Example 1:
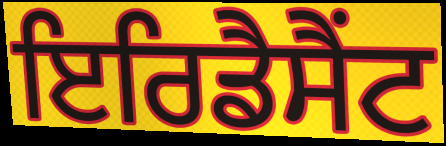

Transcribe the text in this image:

ਇਰਿਡੈਸੈਂਟ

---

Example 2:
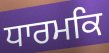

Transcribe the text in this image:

ਧਾਰਮਕਿ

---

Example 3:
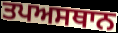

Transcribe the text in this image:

ਤਪਅਸਥਾਨ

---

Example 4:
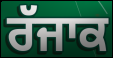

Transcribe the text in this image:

ਰੱਜਾਕ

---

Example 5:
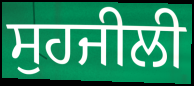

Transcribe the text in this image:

ਸੁਹਜੀਲੀ